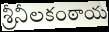
శ్రీనీలకంఠాయ